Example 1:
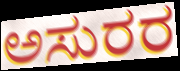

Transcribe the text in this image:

ಅಸುರರ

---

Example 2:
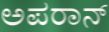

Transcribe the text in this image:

ಅಪರಾನ್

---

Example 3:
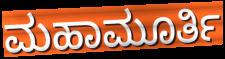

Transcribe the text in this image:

ಮಹಾಮೂರ್ತಿ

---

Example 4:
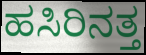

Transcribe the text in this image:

ಹಸಿರಿನತ್ತ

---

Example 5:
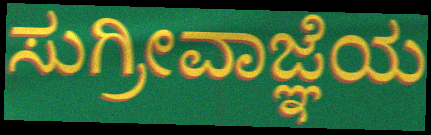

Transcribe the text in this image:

ಸುಗ್ರೀವಾಜ್ಞೆಯ